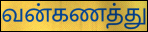
வன்கணத்து